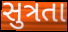
સુત્રતા